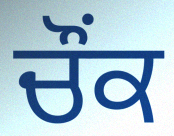
ਚੌਂਕ